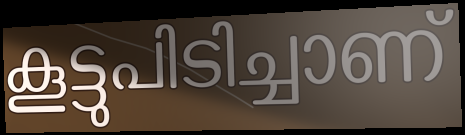
കൂട്ടുപിടിച്ചാണ്